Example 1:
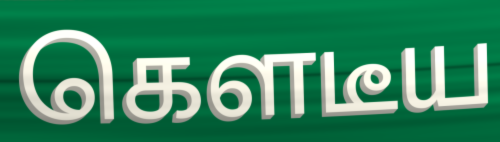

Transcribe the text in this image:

கௌடீய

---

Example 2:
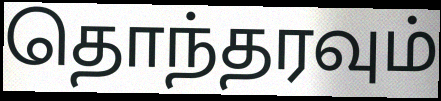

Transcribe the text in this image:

தொந்தரவும்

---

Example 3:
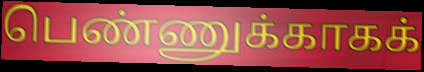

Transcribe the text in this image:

பெண்ணுக்காகக்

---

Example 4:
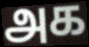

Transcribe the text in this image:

அக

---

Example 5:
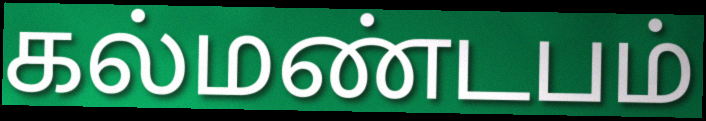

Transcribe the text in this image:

கல்மண்டபம்